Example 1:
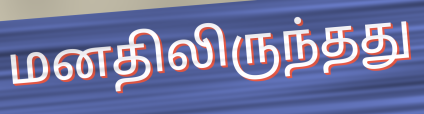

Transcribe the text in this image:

மனதிலிருந்தது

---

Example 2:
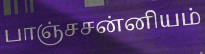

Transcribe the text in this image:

பாஞ்சசன்னியம்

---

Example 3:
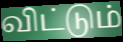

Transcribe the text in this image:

விட்டும்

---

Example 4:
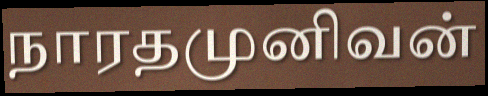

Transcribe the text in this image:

நாரதமுனிவன்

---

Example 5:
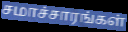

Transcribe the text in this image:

சமாச்சாரங்கள்